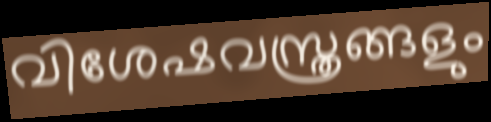
വിശേഷവസ്ത്രങ്ങളും